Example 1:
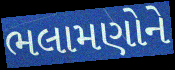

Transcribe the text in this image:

ભલામણોને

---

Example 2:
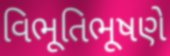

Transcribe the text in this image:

વિભૂતિભૂષણે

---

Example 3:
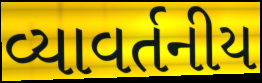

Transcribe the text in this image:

વ્યાવર્તનીય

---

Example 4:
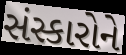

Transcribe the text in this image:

સંસ્કારોને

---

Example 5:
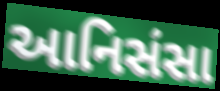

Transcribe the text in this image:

આનિસંસા